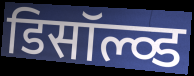
डिसॉल्व्ड